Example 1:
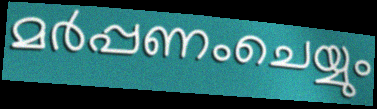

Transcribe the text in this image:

മർപ്പണംചെയ്യും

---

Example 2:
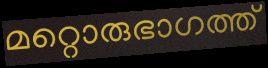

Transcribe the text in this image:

മറ്റൊരുഭാഗത്ത്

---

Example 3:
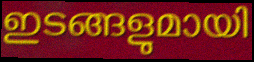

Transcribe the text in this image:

ഇടങ്ങളുമായി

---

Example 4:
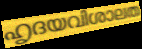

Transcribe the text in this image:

ഹൃദയവിശാലത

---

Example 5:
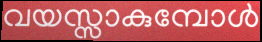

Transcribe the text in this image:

വയസ്സാകുമ്പോൾ